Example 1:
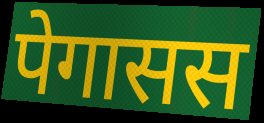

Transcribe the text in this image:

पेगासस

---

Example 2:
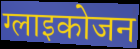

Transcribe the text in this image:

ग्लाइकोजन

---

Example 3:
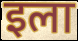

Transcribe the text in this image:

इला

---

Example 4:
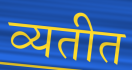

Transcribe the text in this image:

व्यतीत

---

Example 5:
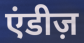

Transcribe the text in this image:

एंडीज़